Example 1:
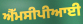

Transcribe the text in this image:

ਐੱਮਸੀਪੀਆਈ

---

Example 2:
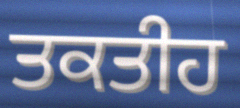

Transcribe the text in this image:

ਤਕਤੀਹ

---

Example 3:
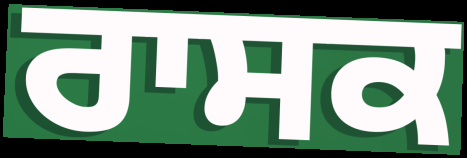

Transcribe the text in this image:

ਰਾਸਕ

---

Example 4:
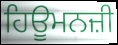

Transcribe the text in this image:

ਹਿਊਮਨਜ਼ੀ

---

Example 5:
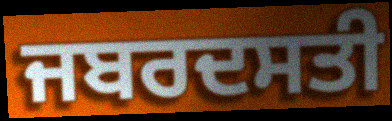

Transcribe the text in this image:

ਜਬਰਦਸਤੀ